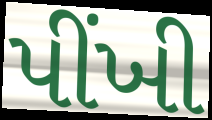
પીંખી